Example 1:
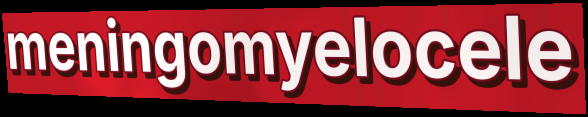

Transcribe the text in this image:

meningomyelocele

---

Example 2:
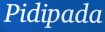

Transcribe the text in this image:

Pidipada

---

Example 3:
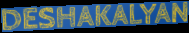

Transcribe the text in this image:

DESHAKALYAN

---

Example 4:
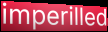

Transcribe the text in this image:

imperilled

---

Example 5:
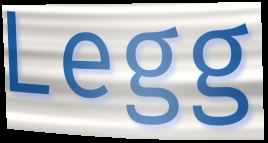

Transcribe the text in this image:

Legg